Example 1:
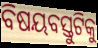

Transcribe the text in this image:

ବିଷୟବସ୍ତୁଟିକୁ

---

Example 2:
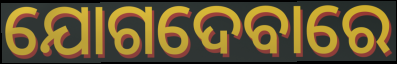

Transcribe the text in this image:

ଯୋଗଦେବାରେ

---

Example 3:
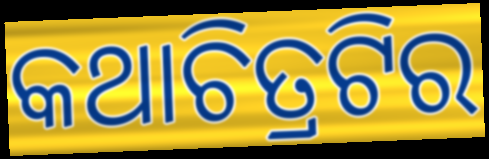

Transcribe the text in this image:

କଥାଚିତ୍ରଟିର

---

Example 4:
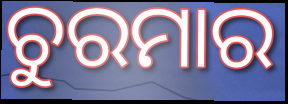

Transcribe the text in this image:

ଚୁରମାର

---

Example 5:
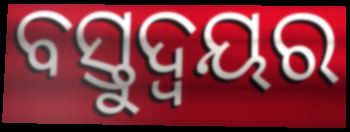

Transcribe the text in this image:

ବସ୍ତୁଦ୍ୱୟର